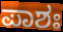
ಪಾಶಃ